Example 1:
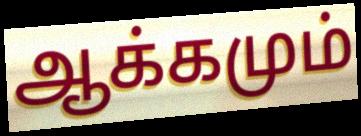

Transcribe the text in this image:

ஆக்கமும்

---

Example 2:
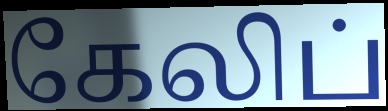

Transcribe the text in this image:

கேலிப்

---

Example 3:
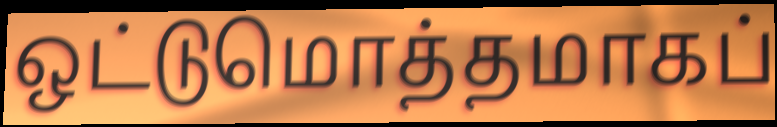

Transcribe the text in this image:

ஒட்டுமொத்தமாகப்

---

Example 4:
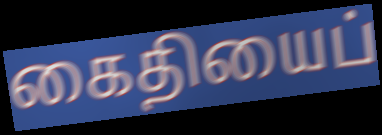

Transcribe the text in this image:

கைதியைப்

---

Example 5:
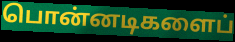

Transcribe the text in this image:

பொன்னடிகளைப்